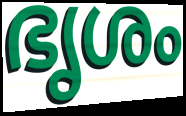
ഭൃശം